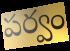
పర్వం